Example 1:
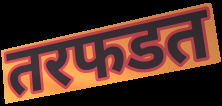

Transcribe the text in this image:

तरफडत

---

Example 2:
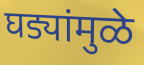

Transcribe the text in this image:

घड्यांमुळे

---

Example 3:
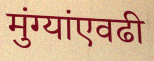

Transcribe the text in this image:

मुंग्यांएवढी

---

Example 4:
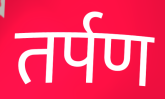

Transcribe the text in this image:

तर्पण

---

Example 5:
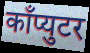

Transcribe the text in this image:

काँप्युटर